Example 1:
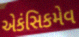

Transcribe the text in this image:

એકંસિકમેવ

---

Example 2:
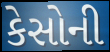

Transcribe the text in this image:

કેસોની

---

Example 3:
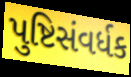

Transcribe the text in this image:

પુષ્ટિસંવર્ધક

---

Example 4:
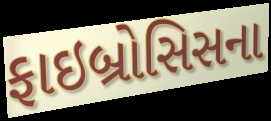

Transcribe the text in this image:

ફાઇબ્રોસિસના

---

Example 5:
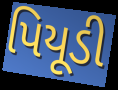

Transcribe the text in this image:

પિયૂડી